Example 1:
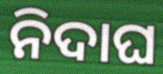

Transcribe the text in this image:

ନିଦାଘ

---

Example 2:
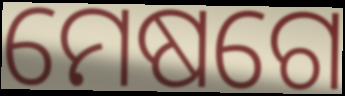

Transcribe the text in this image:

ମେଷଗେ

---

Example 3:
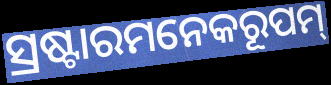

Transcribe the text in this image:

ସ୍ରଷ୍ଟାରମନେକରୂପମ୍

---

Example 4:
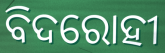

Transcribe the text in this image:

ବିଦରୋହୀ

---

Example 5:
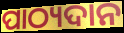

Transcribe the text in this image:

ପାଠ୍ୟଦାନ